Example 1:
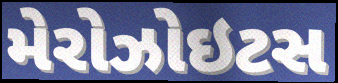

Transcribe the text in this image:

મેરોઝોઇટસ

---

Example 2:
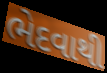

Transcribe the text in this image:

ભેદવાથી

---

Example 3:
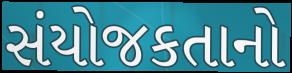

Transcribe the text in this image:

સંયોજકતાનો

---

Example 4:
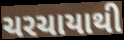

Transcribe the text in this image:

ચરચાયાથી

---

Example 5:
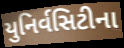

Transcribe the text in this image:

યુનિર્વસિટીના